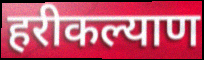
हरीकल्याण